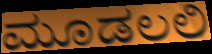
ಮೂಡಲಲಿ